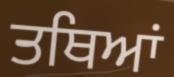
ਤਥਿਆਂ